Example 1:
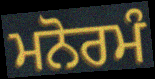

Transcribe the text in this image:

ਮਨੋਰਮੰ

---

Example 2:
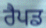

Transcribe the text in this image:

ਰੈਪਡ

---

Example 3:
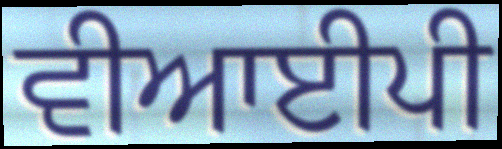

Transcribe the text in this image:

ਵੀਆਈਪੀ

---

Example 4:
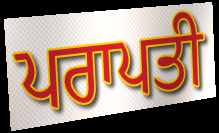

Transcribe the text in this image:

ਪਰਾਪਤੀ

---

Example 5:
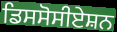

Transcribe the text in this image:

ਡਿਸਸੋਸੀਏਸ਼ਨ